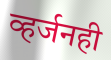
व्हर्जनही